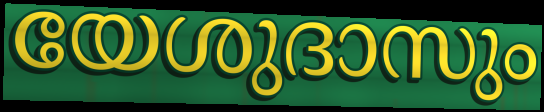
യേശുദാസും